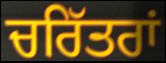
ਚਰਿੱਤਰਾਂ